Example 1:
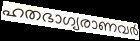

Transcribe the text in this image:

ഹതഭാഗ്യരാണവർ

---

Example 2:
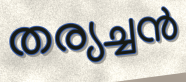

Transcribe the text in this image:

തര്യച്ചൻ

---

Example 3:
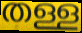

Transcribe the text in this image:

തള്ള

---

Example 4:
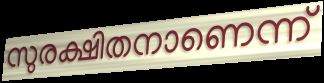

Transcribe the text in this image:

സുരക്ഷിതനാണെന്ന്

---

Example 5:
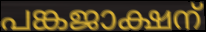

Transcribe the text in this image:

പങ്കജാക്ഷന്